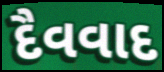
દૈવવાદ